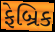
ફેબ્રિક